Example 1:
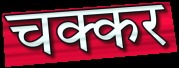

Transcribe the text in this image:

चक्कर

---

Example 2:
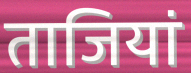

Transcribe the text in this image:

ताजियां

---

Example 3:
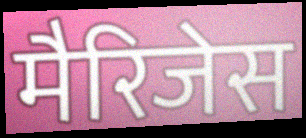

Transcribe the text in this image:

मैरिजेस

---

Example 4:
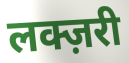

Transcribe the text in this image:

लक्ज़री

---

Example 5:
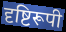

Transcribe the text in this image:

दृष्टिरूपी